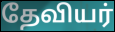
தேவியர்